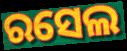
ରସେଲ